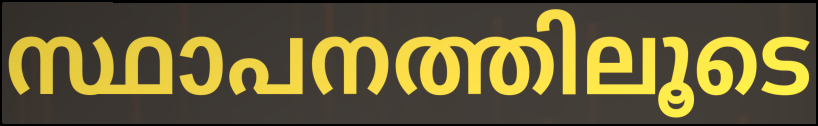
സ്ഥാപനത്തിലൂടെ